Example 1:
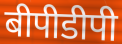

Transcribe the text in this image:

बीपीडीपी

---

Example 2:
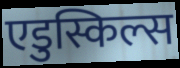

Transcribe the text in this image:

एडुस्किल्स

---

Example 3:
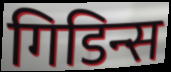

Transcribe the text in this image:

गिडिन्स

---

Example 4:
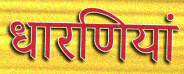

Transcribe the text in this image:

धारणियां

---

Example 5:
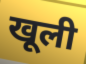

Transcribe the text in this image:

खूली